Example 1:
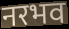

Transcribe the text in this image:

नरभव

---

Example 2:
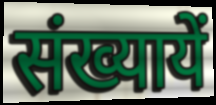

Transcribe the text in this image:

संख्यायें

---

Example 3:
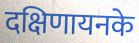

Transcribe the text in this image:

दक्षिणायनके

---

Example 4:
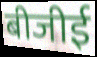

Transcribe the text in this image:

बीजीई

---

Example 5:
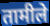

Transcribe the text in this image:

तामीले